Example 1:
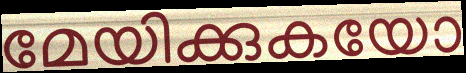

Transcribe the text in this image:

മേയിക്കുകയോ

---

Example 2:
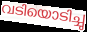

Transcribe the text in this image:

വടിയൊടിച്ചു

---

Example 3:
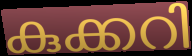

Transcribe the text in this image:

കുക്കറി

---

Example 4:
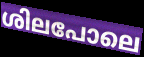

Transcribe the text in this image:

ശിലപോലെ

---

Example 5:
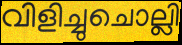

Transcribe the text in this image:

വിളിച്ചുചൊല്ലി